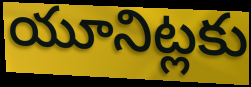
యూనిట్లకు